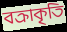
বক্রাকৃতি